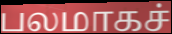
பலமாகச்